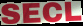
SECL